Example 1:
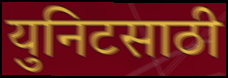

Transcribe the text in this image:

युनिटसाठी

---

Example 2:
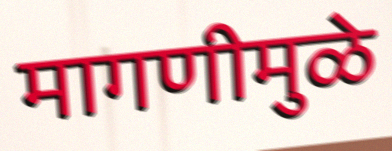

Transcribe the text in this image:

मागणीमुळे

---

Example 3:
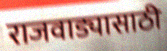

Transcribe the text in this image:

राजवाड्यासाठी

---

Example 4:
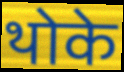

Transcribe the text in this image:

थोके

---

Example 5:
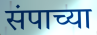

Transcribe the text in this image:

संपाच्या